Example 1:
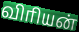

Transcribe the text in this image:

விரியன்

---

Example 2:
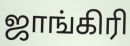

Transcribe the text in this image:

ஜாங்கிரி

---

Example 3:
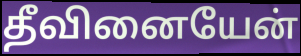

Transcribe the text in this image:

தீவினையேன்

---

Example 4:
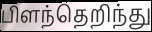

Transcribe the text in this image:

பிளந்தெறிந்து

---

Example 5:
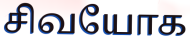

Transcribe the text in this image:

சிவயோக